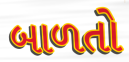
બાળતો